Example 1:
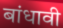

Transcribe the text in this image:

बांधावी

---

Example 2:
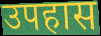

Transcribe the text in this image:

उपहास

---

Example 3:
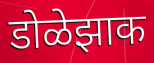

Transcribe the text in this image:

डोळेझाक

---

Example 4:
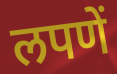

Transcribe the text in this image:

लपणें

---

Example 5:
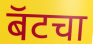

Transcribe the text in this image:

बॅटचा